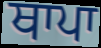
ਥਾਪਾ